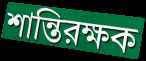
শান্তিরক্ষক